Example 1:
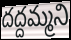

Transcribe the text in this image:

దద్దమ్మని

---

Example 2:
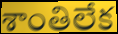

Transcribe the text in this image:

శాంతిలేక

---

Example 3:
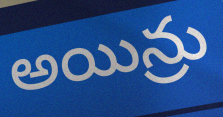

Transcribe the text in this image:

అయిన్రు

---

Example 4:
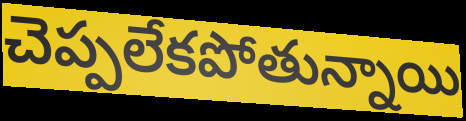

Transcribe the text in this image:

చెప్పలేకపోతున్నాయి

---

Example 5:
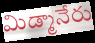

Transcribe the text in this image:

మిడ్మానేరు